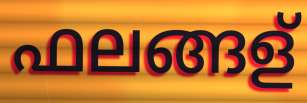
ഫലങ്ങള്